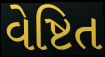
વેષ્ટિત